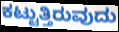
ಕಟ್ಟುತ್ತಿರುವುದು